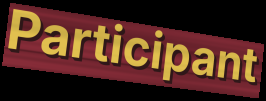
Participant